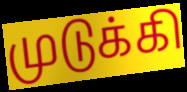
முடுக்கி